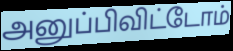
அனுப்பிவிட்டோம்